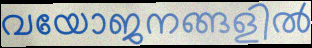
വയോജനങ്ങളിൽ